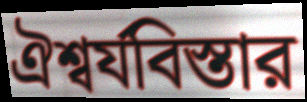
ঐশ্বর্যবিস্তার